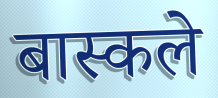
बास्कले